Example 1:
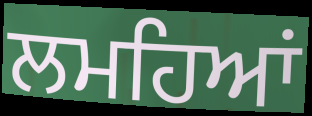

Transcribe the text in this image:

ਲਮਹਿਆਂ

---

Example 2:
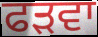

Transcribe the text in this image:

ਫੜਵਾ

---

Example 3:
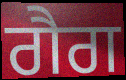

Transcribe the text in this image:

ਗੈਗ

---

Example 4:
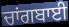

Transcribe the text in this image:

ਚਾਂਗਬਾਈ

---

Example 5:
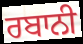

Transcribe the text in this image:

ਰਬਾਨੀ